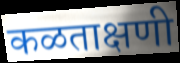
कळताक्षणी